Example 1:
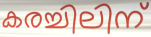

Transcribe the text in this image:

കരച്ചിലിന്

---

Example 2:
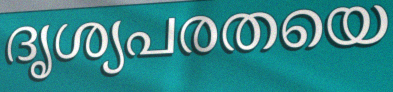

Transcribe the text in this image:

ദൃശ്യപരതയെ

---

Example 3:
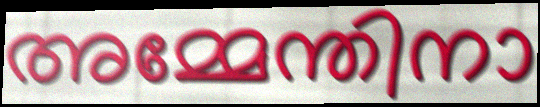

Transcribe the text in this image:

അമ്മേന്തിനാ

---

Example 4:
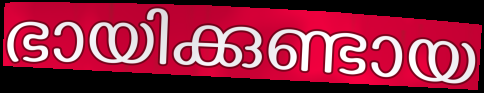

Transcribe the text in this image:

ഭായിക്കുണ്ടായ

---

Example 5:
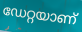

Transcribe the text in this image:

ഡേറ്റയാണ്